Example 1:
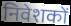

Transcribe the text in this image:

निवेशकों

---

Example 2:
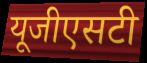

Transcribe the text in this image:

यूजीएसटी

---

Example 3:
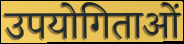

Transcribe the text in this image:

उपयोगिताओं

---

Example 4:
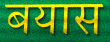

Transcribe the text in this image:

बयास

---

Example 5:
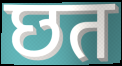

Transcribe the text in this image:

छत